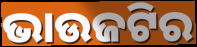
ଭାଉଜଟିର